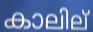
കാലില്